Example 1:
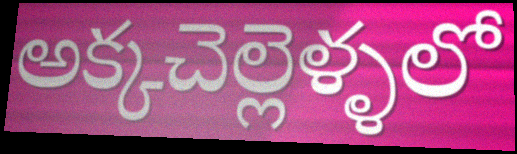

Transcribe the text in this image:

అక్కచెల్లెళ్ళలో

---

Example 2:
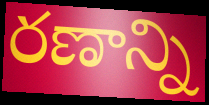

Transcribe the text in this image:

రణాన్ని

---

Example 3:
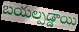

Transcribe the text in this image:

బయల్పడ్డాయి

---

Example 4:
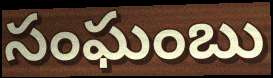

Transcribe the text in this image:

సంఘంబు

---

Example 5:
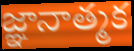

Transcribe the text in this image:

జ్ఞానాత్మక